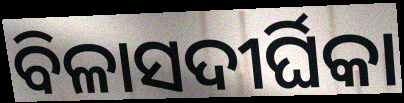
ବିଳାସଦୀର୍ଘିକା